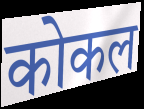
कोकल